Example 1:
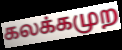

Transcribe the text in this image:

கலக்கமுற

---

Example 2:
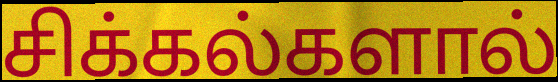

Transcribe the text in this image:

சிக்கல்களால்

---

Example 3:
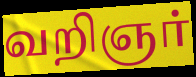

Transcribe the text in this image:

வறிஞர்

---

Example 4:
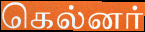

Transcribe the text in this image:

கெல்னர்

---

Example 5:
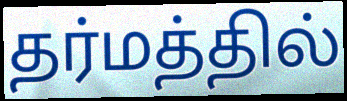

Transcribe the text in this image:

தர்மத்தில்